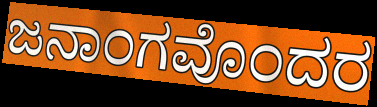
ಜನಾಂಗವೊಂದರ